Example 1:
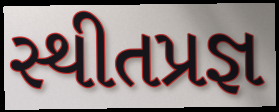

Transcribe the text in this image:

સ્થીતપ્રજ્ઞ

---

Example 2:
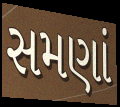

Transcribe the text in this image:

સમણાં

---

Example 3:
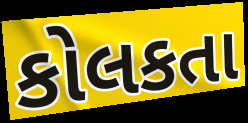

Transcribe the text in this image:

કોલકતા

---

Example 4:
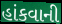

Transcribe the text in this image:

હાંકવાની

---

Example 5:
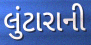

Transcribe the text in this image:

લુંટારાની